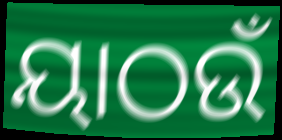
ୟାଠଉଁ